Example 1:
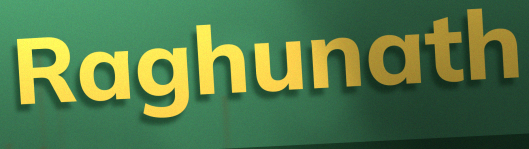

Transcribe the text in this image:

Raghunath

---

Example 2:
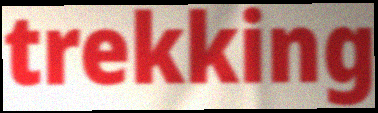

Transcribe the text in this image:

trekking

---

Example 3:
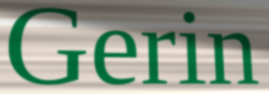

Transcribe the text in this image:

Gerin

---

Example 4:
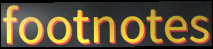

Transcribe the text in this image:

footnotes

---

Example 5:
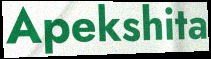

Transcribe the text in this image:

Apekshita